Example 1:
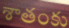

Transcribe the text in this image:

శాతంకు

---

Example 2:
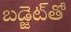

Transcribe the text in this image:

బడ్జెట్‌తో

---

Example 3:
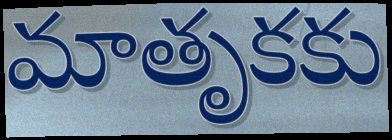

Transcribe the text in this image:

మాతృకకు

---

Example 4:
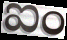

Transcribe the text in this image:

ఐం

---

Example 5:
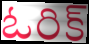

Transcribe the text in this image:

ఓరిక్